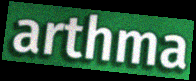
arthma